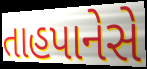
તાહપાનેસે